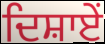
ਦਿਸ਼ਾਏਂ